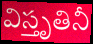
విస్తృతినీ